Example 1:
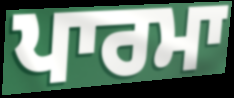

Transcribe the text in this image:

ਪਾਰਮਾ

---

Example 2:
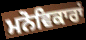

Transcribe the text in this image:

ਮਨੋਵਿਕਾਰਾਂ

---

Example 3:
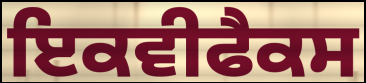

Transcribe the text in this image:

ਇਕਵੀਫੈਕਸ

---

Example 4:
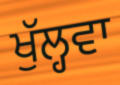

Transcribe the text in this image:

ਖੁੱਲ੍ਹਵਾ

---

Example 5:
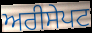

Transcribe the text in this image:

ਅਰੀਸੇਪਟ